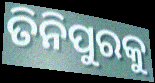
ତିନିପୁରକୁ